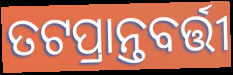
ତଟପ୍ରାନ୍ତବର୍ତ୍ତୀ